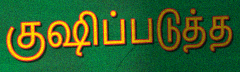
குஷிப்படுத்த